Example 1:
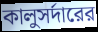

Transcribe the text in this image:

কালুসর্দারের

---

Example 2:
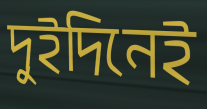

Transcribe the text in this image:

দুইদিনেই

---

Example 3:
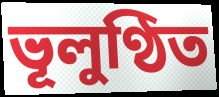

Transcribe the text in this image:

ভূলুণ্ঠিত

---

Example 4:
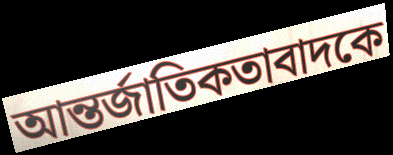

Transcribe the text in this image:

আন্তর্জাতিকতাবাদকে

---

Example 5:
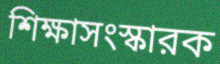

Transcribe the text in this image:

শিক্ষাসংস্কারক